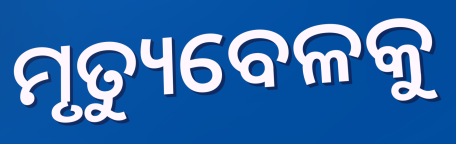
ମୃତ୍ୟୁବେଳକୁ